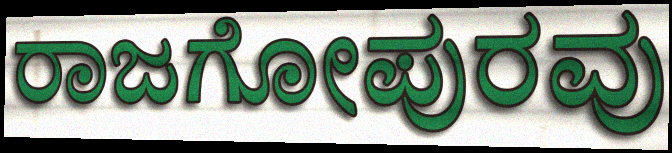
ರಾಜಗೋಪುರವು